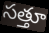
సత్తూ